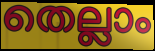
തെല്ലാം